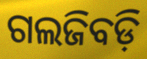
ଗଲଜିବଡ଼ି